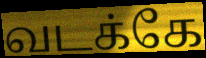
வடக்கே